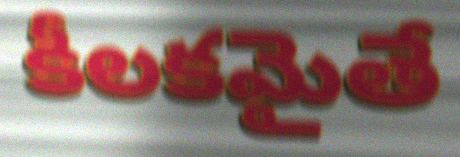
కీలకమైతే